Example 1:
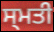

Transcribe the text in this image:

ਸ੍ਮਤੀ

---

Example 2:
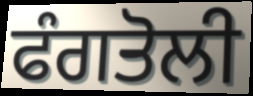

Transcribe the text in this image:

ਫੰਗਤੋਲੀ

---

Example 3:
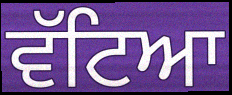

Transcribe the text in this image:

ਵੱਟਿਆ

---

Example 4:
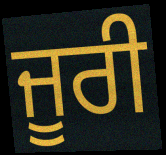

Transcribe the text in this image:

ਜੂਰੀ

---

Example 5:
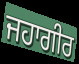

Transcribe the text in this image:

ਜਹਾਗੀਰ